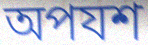
অপযশ